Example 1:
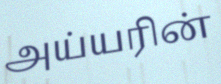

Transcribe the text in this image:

அய்யரின்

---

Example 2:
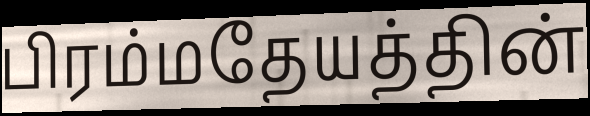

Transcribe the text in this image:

பிரம்மதேயத்தின்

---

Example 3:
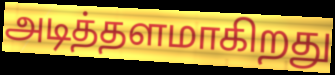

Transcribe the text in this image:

அடித்தளமாகிறது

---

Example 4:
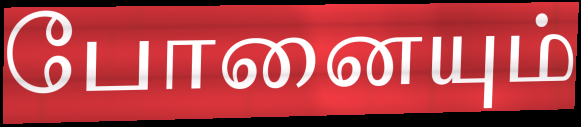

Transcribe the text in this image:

போனையும்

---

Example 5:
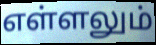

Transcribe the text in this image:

எள்ளலும்